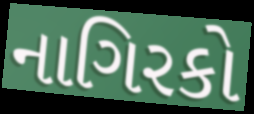
નાગિરકો